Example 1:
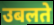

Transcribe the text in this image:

उबलते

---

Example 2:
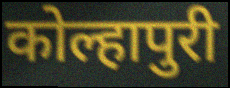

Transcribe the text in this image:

कोल्हापुरी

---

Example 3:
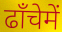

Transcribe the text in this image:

ढाँचेमें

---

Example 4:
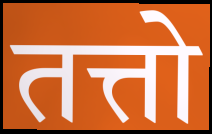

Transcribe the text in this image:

तत्तो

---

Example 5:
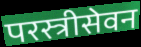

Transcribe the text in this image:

परस्त्रीसेवन